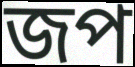
জপ